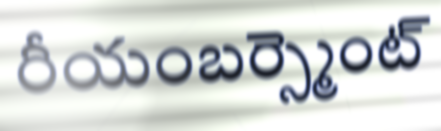
రీయంబర్స్మెంట్